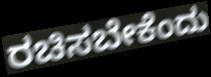
ರಚಿಸಬೇಕೆಂದು